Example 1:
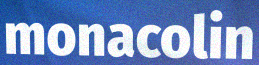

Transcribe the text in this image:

monacolin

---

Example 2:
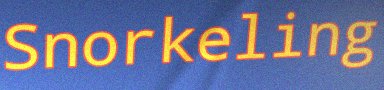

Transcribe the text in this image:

Snorkeling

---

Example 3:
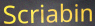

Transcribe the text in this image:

Scriabin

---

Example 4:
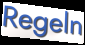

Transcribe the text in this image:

Regeln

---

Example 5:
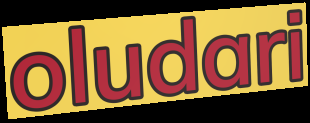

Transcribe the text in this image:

oludari